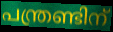
പന്ത്രണ്ടിന്